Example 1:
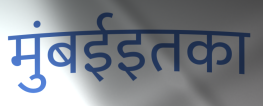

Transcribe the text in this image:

मुंबईइतका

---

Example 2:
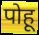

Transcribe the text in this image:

पोहू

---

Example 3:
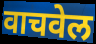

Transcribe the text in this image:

वाचवेल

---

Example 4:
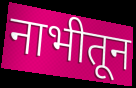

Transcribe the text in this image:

नाभीतून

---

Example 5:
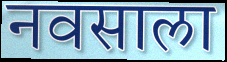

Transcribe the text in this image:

नवसाला